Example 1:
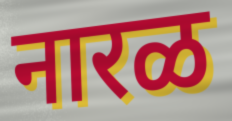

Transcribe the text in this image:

नारळ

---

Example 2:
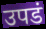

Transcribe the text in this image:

उपडं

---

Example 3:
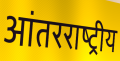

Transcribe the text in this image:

आंतरराष्ट्रीय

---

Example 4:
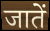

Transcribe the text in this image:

जातें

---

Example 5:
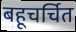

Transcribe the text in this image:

बहूचर्चित